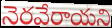
నెరవేరాయని